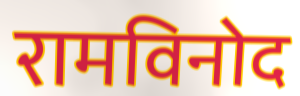
रामविनोद